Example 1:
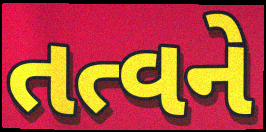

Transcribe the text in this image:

તત્વને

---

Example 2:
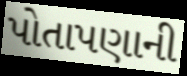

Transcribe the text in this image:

પોતાપણાની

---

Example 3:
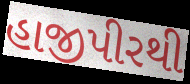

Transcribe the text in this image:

હાજીપીરથી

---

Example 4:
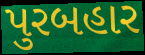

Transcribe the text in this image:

પુરબહાર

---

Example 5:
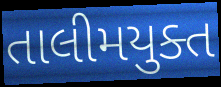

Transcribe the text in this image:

તાલીમયુક્ત